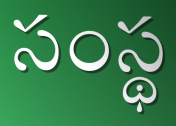
సంస్థ